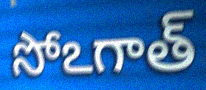
సోఽగాత్